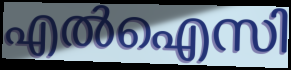
എൽഐസി